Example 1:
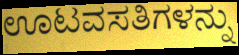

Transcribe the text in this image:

ಊಟವಸತಿಗಳನ್ನು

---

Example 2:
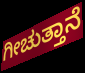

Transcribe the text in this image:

ಗೀಚುತ್ತಾನೆ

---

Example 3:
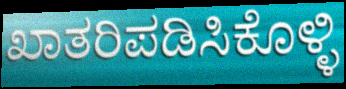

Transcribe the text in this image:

ಖಾತರಿಪಡಿಸಿಕೊಳ್ಳಿ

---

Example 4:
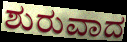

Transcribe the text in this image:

ಶುರುವಾದ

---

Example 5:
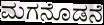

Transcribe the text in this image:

ಮಗನೊಡನೆ